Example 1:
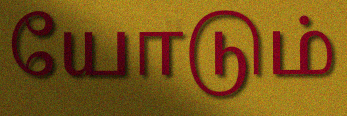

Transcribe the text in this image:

யோடும்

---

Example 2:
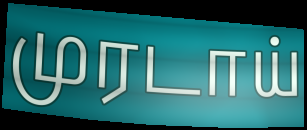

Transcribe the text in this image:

முரடாய்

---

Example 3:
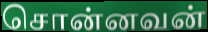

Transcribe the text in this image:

சொன்னவன்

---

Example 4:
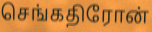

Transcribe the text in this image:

செங்கதிரோன்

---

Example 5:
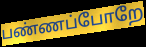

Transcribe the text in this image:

பண்ணப்போறே